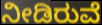
ನೀಡಿರುವೆ